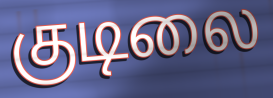
குடிலை